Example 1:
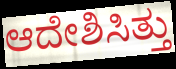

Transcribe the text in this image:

ಆದೇಶಿಸಿತ್ತು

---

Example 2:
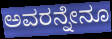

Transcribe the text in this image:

ಅವರನ್ನೇನೂ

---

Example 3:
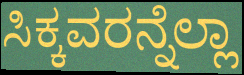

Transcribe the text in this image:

ಸಿಕ್ಕವರನ್ನೆಲ್ಲಾ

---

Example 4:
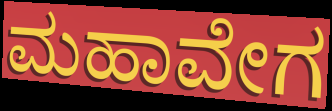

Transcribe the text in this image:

ಮಹಾವೇಗ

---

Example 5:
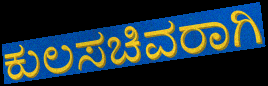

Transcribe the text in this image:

ಕುಲಸಚಿವರಾಗಿ